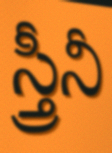
స్త్రీనీ